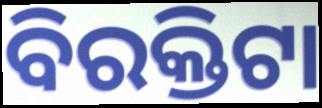
ବିରକ୍ତିଟା